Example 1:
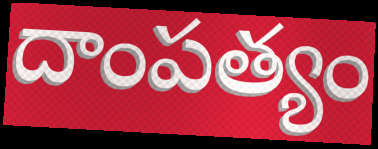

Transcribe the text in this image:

దాంపత్యం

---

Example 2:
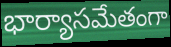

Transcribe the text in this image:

భార్యాసమేతంగా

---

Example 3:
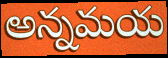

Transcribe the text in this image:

అన్నమయ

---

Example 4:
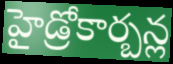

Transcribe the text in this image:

హైడ్రోకార్బన్ల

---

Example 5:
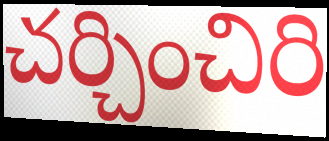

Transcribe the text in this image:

చర్చించిరి